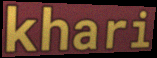
khari